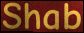
Shab